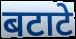
बटाटे